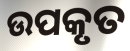
ଉପକୃତ